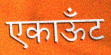
एकाऊँट